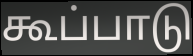
கூப்பாடு